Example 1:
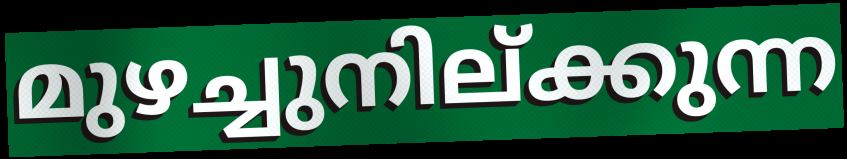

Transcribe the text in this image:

മുഴച്ചുനില്ക്കുന്ന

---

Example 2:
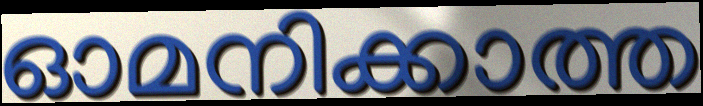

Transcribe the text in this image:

ഓമനിക്കാത്ത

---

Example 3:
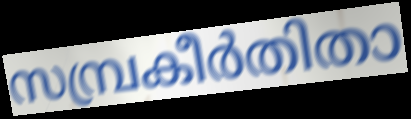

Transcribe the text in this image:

സമ്പ്രകീർതിതാ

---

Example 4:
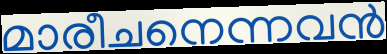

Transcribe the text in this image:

മാരീചനെന്നവൻ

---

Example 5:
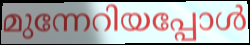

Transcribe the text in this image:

മുന്നേറിയപ്പോൾ